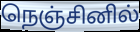
நெஞ்சினில்